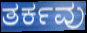
ತರ್ಕವು